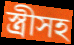
স্ত্রীসহ